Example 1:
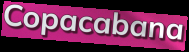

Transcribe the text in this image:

Copacabana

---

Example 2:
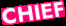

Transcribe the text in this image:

CHIEF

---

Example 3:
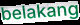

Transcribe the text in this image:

belakang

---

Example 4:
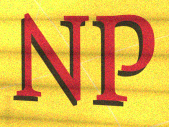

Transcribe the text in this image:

NP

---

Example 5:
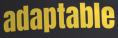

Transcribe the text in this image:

adaptable